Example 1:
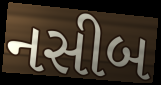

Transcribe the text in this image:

નસીબ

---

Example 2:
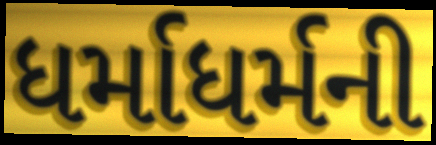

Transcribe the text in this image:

ધર્માધર્મની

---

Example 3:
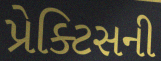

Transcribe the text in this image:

પ્રેક્ટિસની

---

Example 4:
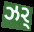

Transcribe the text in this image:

ઝર્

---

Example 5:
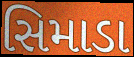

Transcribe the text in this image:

સિમાડા